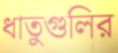
ধাতুগুলির